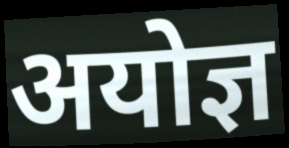
अयोज्ञ